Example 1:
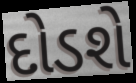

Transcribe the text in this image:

દોડશે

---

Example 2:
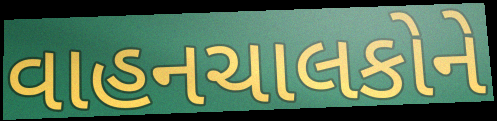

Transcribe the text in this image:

વાહનચાલકોને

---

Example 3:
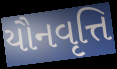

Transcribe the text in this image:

યૌનવૃત્તિ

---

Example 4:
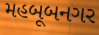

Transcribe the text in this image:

મહબૂબનગર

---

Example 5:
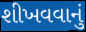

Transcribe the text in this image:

શીખવવાનું